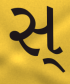
સ્